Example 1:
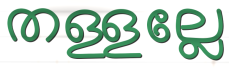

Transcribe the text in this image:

തള്ളല്ലേ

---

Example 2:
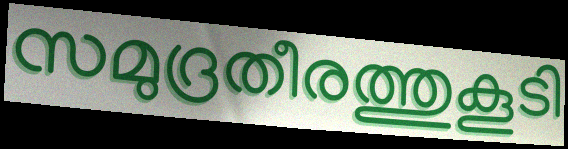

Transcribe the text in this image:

സമുദ്രതീരത്തുകൂടി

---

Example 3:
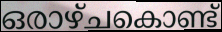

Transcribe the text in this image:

ഒരാഴ്ചകൊണ്ട്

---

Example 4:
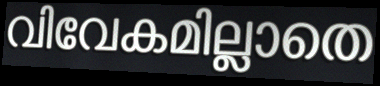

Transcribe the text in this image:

വിവേകമില്ലാതെ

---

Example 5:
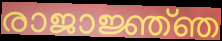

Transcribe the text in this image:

രാജാജ്ഞ്ഞ